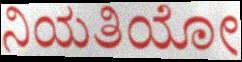
ನಿಯತಿಯೋ